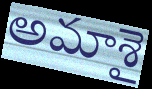
అమాశై